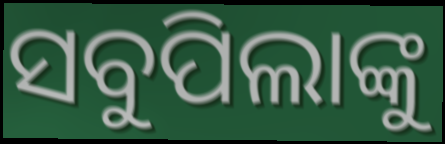
ସବୁପିଲାଙ୍କୁ